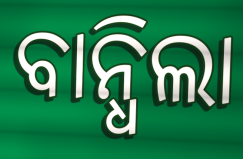
ବାନ୍ଧିଲା